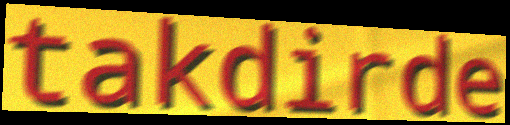
takdirde